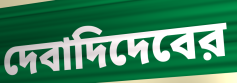
দেবাদিদেবের